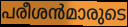
പരീശൻമാരുടെ